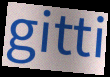
gitti